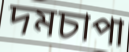
দমচাপা